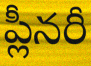
ప్లీనరీ